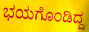
ಭಯಗೊಂಡಿದ್ದ